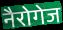
नैरोगेज